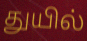
துயில்